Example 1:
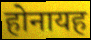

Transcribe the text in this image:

होनायह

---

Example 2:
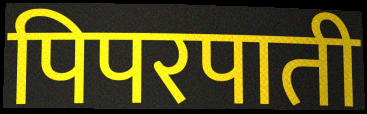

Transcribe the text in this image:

पिपरपाती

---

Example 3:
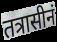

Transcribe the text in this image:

तत्रासीनं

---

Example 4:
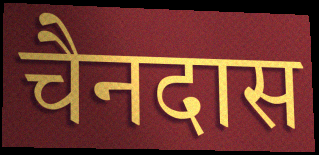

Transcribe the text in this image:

चैनदास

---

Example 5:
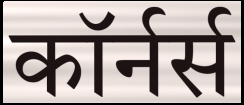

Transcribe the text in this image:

कॉर्नर्स